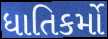
ધાતિકર્મો